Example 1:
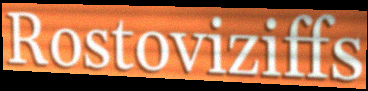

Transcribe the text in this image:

Rostoviziffs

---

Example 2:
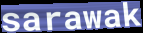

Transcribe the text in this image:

sarawak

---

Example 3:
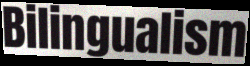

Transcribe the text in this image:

Bilingualism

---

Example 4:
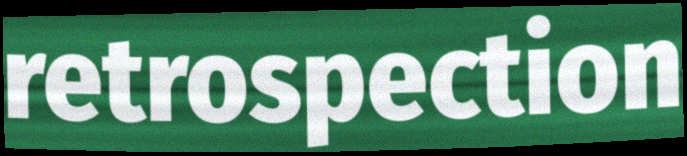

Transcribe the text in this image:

retrospection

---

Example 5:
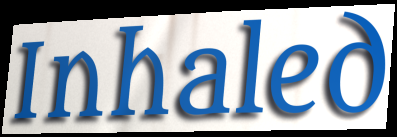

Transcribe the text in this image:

Inhaled